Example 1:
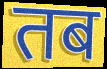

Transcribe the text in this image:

तब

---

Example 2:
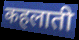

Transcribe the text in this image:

कहलाती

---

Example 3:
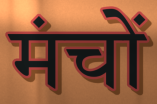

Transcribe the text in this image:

मंचों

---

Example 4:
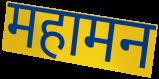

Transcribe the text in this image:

महामन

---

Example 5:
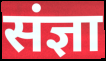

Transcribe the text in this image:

संज्ञा